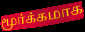
மூர்க்கமாக